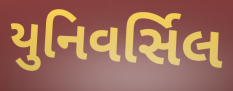
યુનિવર્સિલ